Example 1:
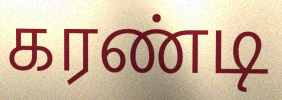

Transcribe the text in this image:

கரண்டி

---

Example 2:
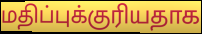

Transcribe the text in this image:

மதிப்புக்குரியதாக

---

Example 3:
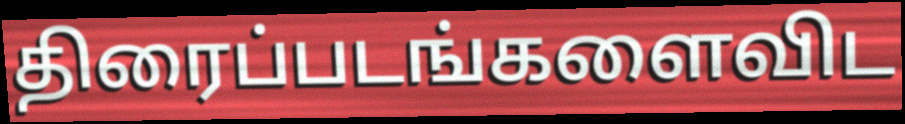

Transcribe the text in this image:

திரைப்படங்களைவிட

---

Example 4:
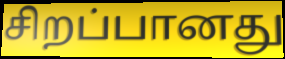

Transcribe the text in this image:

சிறப்பானது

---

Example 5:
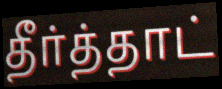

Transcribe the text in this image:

தீர்த்தாட்